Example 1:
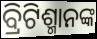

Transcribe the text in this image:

ବ୍ରିଟିଶ୍ମାନଙ୍କ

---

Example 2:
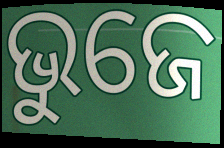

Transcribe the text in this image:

ଭୁଜେ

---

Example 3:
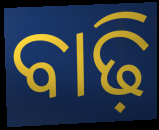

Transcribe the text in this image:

ବାଢ଼ି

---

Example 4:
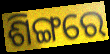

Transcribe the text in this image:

ଶିଙ୍ଗରେ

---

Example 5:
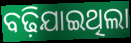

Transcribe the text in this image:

ବଢ଼ିଯାଇଥିଲା